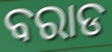
ବରାଡ